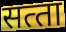
सत्‍ता